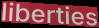
liberties